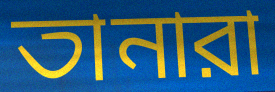
তানারা